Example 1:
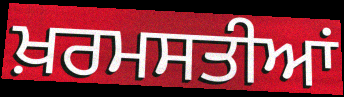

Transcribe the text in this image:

ਖ਼ਰਮਸਤੀਆਂ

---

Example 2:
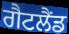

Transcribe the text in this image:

ਗੈਟਲੈਂਡ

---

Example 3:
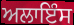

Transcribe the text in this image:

ਅਲਾਇੰਸ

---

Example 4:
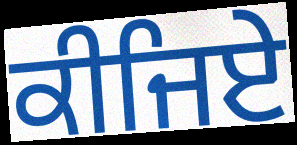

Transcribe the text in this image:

ਕੀਜਿਏ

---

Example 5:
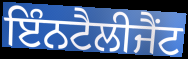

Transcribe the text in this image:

ਇੰਨਟੈਲੀਜੈਂਟ